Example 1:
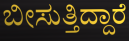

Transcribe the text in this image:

ಬೀಸುತ್ತಿದ್ದಾರೆ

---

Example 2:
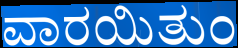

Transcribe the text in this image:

ವಾರಯಿತುಂ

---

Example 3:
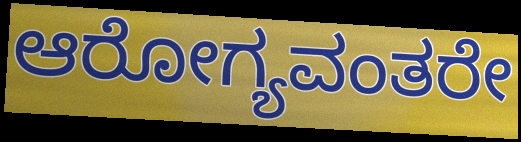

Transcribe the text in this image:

ಆರೋಗ್ಯವಂತರೇ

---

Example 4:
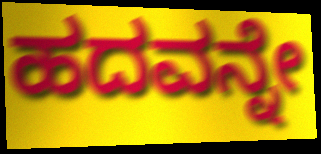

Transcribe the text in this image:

ಹದವನ್ನೇ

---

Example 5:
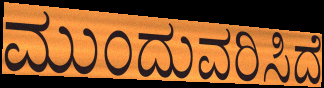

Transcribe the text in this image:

ಮುಂದುವರಿಸಿದೆ